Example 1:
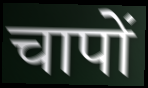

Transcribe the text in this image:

चापों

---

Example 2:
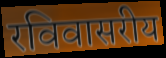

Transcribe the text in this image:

रविवासरीय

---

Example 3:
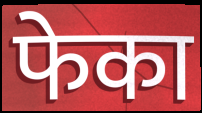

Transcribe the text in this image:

फेका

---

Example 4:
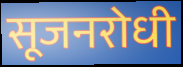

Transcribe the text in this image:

सूजनरोधी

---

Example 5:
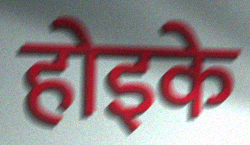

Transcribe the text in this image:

होइके